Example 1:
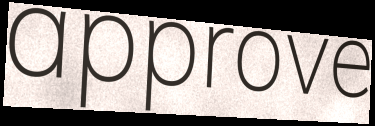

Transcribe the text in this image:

approve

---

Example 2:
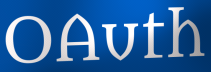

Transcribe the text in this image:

OAuth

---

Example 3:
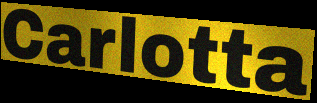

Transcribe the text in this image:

Carlotta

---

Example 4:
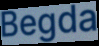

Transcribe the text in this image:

Begda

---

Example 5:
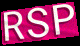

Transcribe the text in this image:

RSP